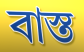
বাস্ত